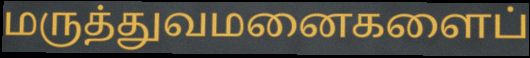
மருத்துவமனைகளைப்